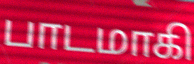
பாடமாகி